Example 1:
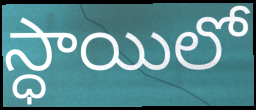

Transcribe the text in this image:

స్ధాయిలో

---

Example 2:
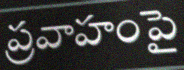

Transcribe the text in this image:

ప్రవాహంపై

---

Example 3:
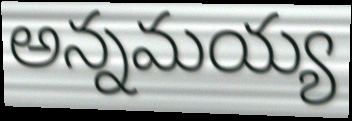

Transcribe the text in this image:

అన్నమయ్య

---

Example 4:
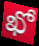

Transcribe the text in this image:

ఖో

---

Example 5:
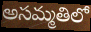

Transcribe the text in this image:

అసమ్మతిలో